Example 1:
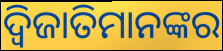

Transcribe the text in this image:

ଦ୍ୱିଜାତିମାନଙ୍କର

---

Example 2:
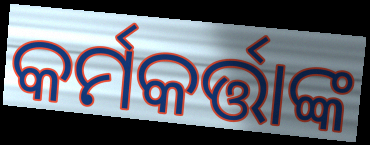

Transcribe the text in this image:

କର୍ମକର୍ତ୍ତାଙ୍କ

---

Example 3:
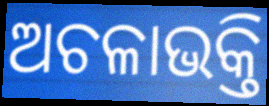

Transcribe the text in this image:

ଅଚଳାଭକ୍ତି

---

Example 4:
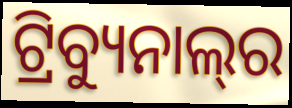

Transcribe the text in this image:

ଟ୍ରିବ୍ୟୁନାଲ୍‍ର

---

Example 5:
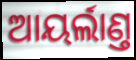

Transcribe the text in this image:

ଆୟର୍ଲାଣ୍ତ